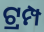
ଟ୍ରମ୍ପ